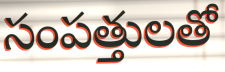
సంపత్తులతో